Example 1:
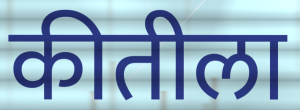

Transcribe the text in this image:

कीतीला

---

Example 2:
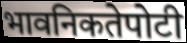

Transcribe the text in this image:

भावनिकतेपोटी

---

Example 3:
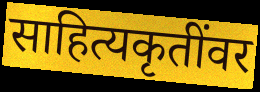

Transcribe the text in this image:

साहित्यकृतींवर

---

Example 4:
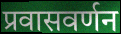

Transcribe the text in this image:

प्रवासवर्णन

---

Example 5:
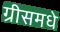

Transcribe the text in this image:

ग्रीसमधे